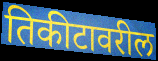
तिकीटावरील